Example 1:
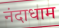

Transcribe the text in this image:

नंदाधाम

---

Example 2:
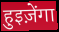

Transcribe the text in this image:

हुइज़ेंगा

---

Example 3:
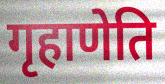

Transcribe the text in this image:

गृहाणेति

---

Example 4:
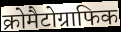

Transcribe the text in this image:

क्रोमैटोग्राफिक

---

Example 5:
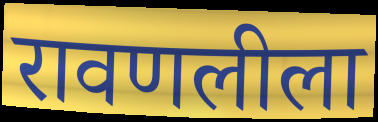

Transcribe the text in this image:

रावणलीला